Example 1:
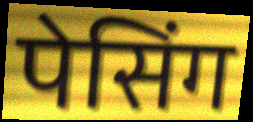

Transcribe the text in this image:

पेसिंग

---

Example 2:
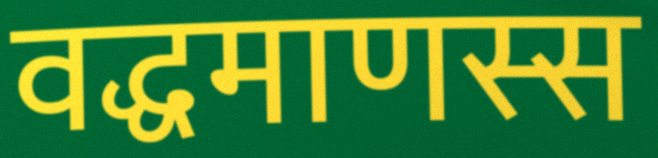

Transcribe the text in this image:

वद्धमाणस्स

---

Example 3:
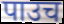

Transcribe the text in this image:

पाउच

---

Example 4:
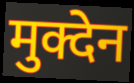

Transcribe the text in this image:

मुक्देन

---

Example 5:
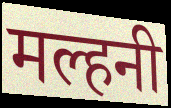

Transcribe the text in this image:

मल्हनी